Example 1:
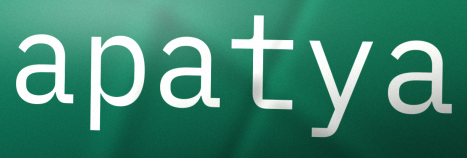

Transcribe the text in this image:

apatya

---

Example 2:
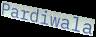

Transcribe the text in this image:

Pardiwala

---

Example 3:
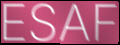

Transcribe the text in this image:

ESAF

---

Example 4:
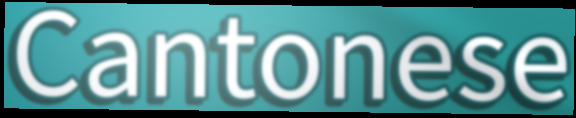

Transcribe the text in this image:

Cantonese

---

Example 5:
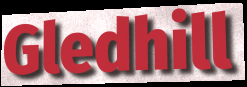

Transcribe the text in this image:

Gledhill